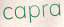
capra